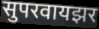
सुपरवायझर